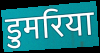
डुमरिया